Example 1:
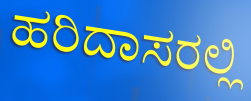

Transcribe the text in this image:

ಹರಿದಾಸರಲ್ಲಿ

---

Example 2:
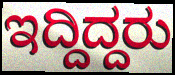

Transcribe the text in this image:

ಇದ್ದಿದ್ದರು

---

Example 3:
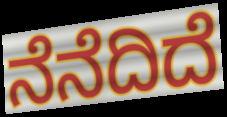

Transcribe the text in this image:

ನೆನೆದಿದೆ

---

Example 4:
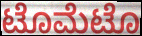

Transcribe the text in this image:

ಟೊಮೆಟೊ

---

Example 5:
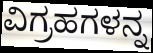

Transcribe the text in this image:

ವಿಗ್ರಹಗಳನ್ನ